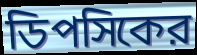
ডিপসিকের